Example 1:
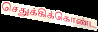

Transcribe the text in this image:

செதுக்கிக்கொண்ட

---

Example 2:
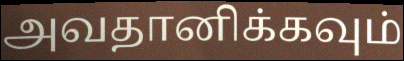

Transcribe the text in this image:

அவதானிக்கவும்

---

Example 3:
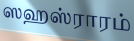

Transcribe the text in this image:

ஸஹஸ்ராரம்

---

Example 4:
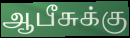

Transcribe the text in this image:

ஆபீசுக்கு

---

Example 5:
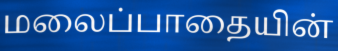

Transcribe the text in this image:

மலைப்பாதையின்